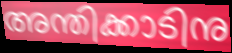
അന്തിക്കാടിനു